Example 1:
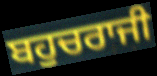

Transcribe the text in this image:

ਬਹੁਚਰਾਜੀ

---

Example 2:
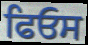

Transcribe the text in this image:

ਫਿਓਸ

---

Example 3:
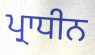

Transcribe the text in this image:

ਪ੍ਰਾਧੀਨ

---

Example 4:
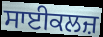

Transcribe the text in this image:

ਸਾਈਕਲਜ਼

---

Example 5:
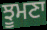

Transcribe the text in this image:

ਝੂਮਣਾ